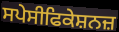
ਸਪੇਸੀਫਿਕੇਸ਼ਨਜ਼